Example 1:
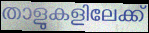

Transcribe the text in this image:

താളുകളിലേക്ക്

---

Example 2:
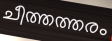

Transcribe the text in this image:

ചീത്തത്തരം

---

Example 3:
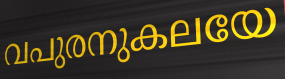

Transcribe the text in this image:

വപുരനുകലയേ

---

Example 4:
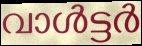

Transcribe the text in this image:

വാൾട്ടർ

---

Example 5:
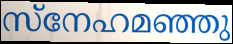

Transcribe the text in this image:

സ്നേഹമഞ്ഞു